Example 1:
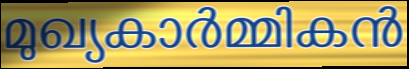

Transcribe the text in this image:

മുഖ്യകാർമ്മികൻ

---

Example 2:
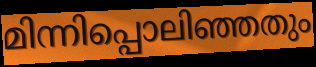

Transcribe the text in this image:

മിന്നിപ്പൊലിഞ്ഞതും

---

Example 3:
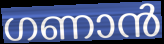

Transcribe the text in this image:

ഗണാൻ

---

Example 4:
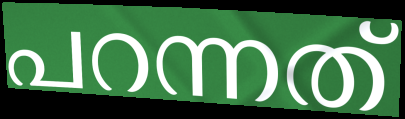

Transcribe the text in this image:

പറന്നത്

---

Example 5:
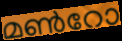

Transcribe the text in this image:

മൺറോ